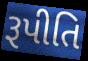
રૂપીતિ